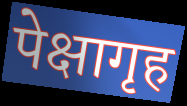
पेक्षागृह